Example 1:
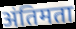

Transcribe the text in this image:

अंतिमता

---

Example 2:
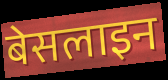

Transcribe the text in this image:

बेसलाइन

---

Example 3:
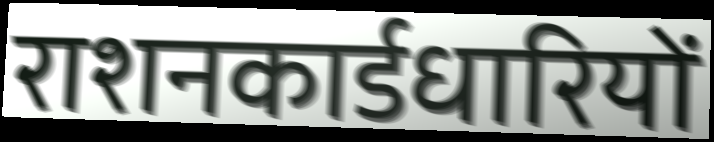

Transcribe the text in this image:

राशनकार्डधारियों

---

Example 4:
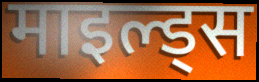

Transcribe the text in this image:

माइल्ड्स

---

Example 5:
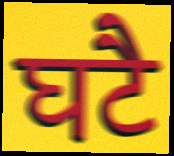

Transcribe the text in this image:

घटै